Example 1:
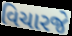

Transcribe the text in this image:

વિચારજે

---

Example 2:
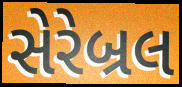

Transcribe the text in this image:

સેરેબ્રલ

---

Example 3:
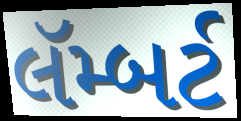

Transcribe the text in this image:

લૅમ્બર્ટ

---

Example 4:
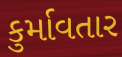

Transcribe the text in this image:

કુર્માવતાર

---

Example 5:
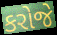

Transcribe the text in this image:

કરોજે